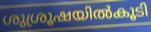
ശുശ്രൂഷയിൽകൂടി